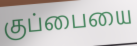
குப்பையை